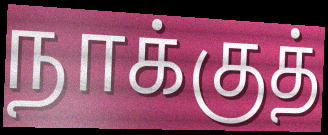
நாக்குத்